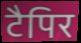
टैपिर